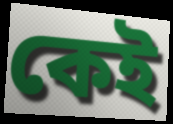
কেই